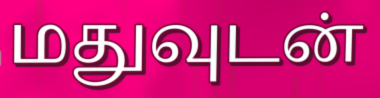
மதுவுடன்